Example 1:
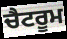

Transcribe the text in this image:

ਚੈਟਰੂਮ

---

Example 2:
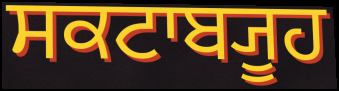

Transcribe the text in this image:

ਸਕਟਾਬ੍ਯੂਹ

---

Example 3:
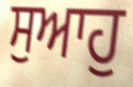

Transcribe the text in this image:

ਸੁਆਹੁ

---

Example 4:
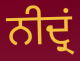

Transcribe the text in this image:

ਨੀਦ੍ਰਂ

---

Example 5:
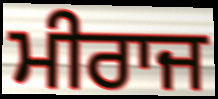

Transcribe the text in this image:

ਮੀਰਾਜ